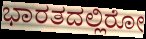
ಭಾರತದಲ್ಲಿರೋ